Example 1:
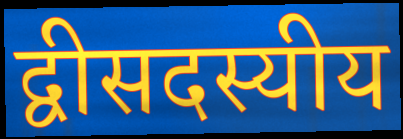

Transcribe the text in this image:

द्वीसदस्यीय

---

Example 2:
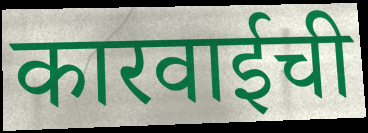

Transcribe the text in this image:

कारवाईची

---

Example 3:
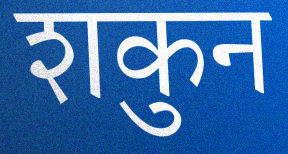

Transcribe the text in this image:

शकुन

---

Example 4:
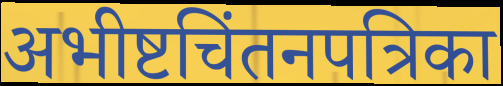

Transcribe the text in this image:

अभीष्टचिंतनपत्रिका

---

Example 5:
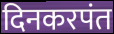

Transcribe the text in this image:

दिनकरपंत